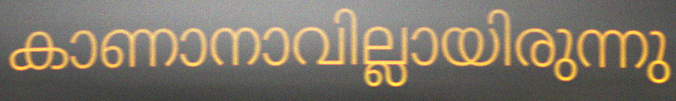
കാണാനാവില്ലായിരുന്നു